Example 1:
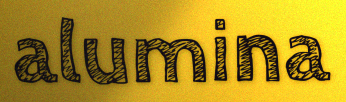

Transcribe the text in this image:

alumina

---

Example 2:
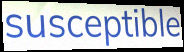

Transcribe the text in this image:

susceptible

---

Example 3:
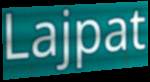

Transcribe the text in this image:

Lajpat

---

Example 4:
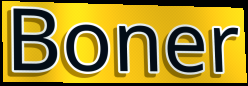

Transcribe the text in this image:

Boner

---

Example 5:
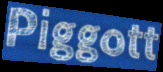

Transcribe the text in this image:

Piggott